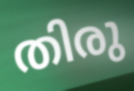
തിരു